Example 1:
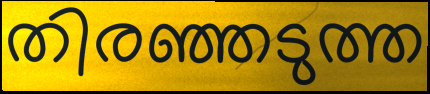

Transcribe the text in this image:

തിരഞ്ഞടുത്ത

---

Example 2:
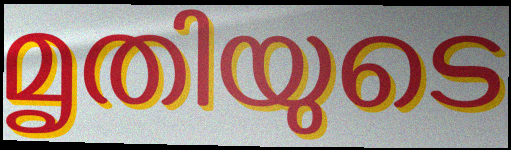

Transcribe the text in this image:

മൃതിയുടെ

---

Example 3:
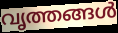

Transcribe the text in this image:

വൃത്തങ്ങൾ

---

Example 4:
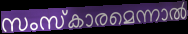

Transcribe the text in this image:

സംസ്കാരമെന്നാൽ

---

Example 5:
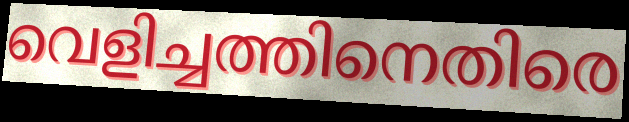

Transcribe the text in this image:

വെളിച്ചത്തിനെതിരെ